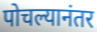
पोचल्यानंतर